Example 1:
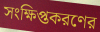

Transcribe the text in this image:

সংক্ষিপ্তকরণের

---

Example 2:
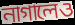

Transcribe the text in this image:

নাগালেও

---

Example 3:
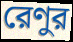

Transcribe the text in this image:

রেণুর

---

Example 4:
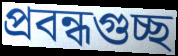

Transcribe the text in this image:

প্রবন্ধগুচ্ছ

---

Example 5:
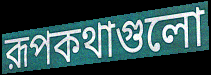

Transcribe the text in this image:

রূপকথাগুলো